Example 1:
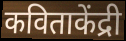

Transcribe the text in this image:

कविताकेंद्री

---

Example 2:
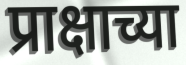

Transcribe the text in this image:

प्राक्षाच्या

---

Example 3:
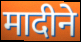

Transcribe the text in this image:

मादीने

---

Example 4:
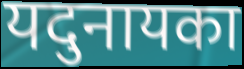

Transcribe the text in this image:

यदुनायका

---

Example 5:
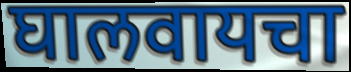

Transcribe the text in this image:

घालवायचा